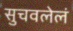
सुचवलेलं